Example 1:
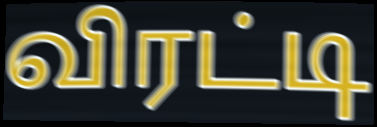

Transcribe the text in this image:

விரட்டி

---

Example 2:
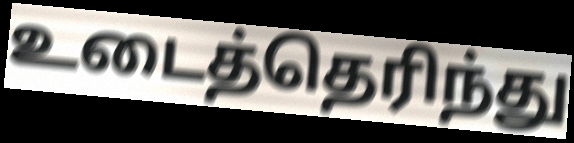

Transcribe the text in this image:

உடைத்தெரிந்து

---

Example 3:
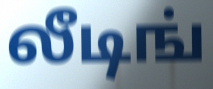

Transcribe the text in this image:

லீடிங்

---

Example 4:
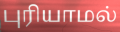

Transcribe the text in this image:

புரியாமல்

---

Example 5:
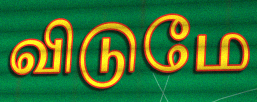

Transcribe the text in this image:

விடுமே